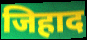
जिहाद